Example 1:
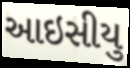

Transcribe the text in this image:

આઇસીયુ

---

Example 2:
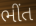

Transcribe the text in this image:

ભીંત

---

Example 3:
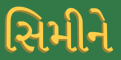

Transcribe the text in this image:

સિમીને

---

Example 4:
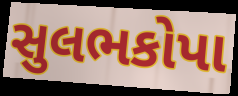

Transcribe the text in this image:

સુલભકોપા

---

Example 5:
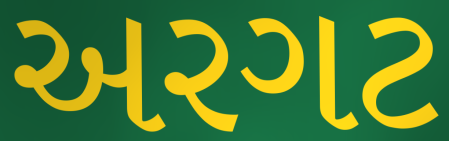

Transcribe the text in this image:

અરગટ